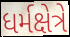
ધર્મક્ષેત્રે